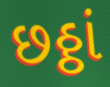
છઠ્ઠાં